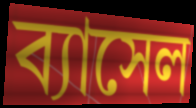
ব্যাসেল